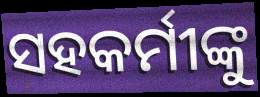
ସହକର୍ମୀଙ୍କୁ